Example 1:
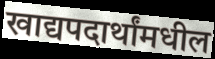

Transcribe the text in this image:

खाद्यपदार्थांमधील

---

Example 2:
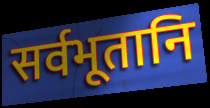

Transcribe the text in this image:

सर्वभूतानि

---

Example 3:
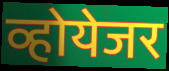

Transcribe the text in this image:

व्होयेजर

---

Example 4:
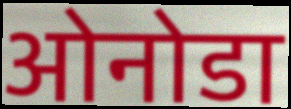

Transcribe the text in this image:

ओनोडा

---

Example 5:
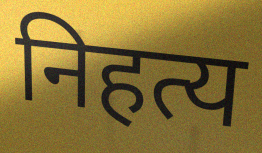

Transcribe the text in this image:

निहत्य